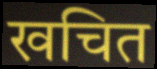
खचित